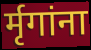
र्मृगांना